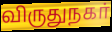
விருதுநகர்